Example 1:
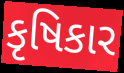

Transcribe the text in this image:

કૃષિકાર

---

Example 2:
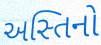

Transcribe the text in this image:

અસ્તિનો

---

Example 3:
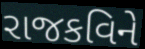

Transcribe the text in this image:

રાજકવિને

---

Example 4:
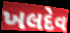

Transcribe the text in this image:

ખલદેવ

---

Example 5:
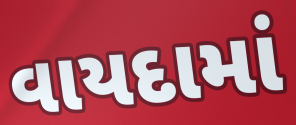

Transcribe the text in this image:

વાયદામાં